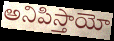
అనిపిస్తాయో